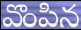
వొంపిన